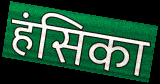
हंसिका